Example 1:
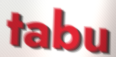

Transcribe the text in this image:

tabu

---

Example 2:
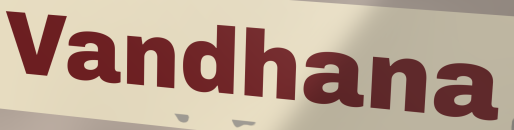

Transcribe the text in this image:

Vandhana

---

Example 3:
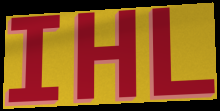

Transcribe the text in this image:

IHL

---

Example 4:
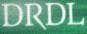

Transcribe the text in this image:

DRDL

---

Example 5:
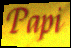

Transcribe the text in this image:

Papi